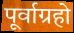
पूर्वाग्रहो